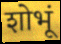
शोभूं